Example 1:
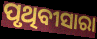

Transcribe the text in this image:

ପୃଥିବୀସାରା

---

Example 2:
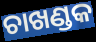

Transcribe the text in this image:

ଚାଖଣ୍ଡକ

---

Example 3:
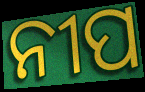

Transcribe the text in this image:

ନୀପ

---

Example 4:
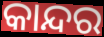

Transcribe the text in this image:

କାନ୍ଦର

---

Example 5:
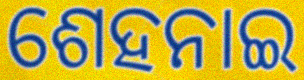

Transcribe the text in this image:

ଶେହନାଇ